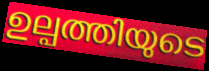
ഉല്പത്തിയുടെ